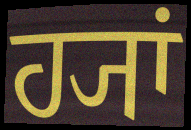
ਹ੍ਯਾਂ